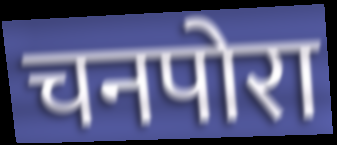
चनपोरा